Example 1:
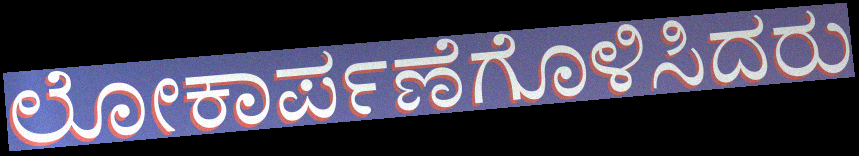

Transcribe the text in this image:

ಲೋಕಾರ್ಪಣೆಗೊಳಿಸಿದರು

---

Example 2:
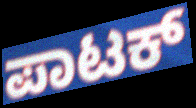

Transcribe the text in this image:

ಪಾಟಕ್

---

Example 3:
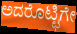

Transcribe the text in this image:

ಅದರೊಟ್ಟಿಗೇ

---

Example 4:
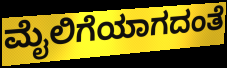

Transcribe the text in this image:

ಮೈಲಿಗೆಯಾಗದಂತೆ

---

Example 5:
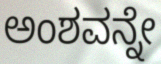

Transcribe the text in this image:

ಅಂಶವನ್ನೇ